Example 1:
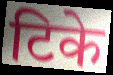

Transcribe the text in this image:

टिके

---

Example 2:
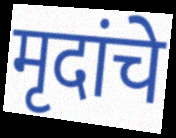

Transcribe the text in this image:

मृदांचे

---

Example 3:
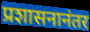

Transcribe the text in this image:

प्रशासनानंतर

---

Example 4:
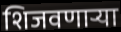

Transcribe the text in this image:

शिजवणाऱ्या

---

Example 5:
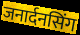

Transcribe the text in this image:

जनार्दनसिंग